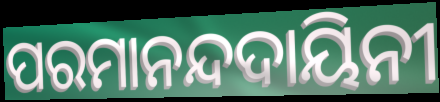
ପରମାନନ୍ଦଦାୟିନୀ